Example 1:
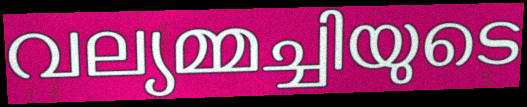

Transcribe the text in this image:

വല്യമ്മച്ചിയുടെ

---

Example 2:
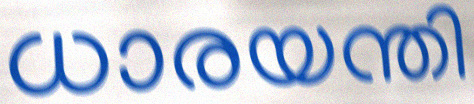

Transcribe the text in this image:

ധാരയന്തി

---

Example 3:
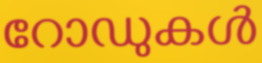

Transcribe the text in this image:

റോഡുകൾ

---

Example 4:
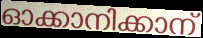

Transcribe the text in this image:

ഓക്കാനിക്കാന്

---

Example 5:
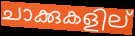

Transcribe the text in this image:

ചാക്കുകളില്